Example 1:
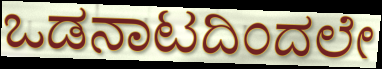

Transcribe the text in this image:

ಒಡನಾಟದಿಂದಲೇ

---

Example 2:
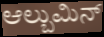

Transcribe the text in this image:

ಆಲ್ಬುಮಿನ್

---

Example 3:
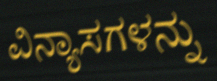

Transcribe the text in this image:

ವಿನ್ಯಾಸಗಳನ್ನು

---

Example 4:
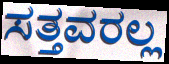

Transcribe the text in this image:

ಸತ್ತವರಲ್ಲ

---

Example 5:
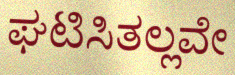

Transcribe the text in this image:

ಘಟಿಸಿತಲ್ಲವೇ